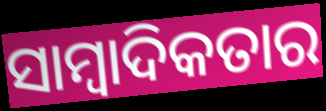
ସାମ୍ୱାଦିକତାର